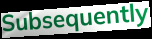
Subsequently